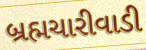
બ્રહ્મચારીવાડી